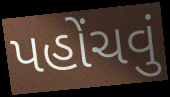
પહોંચવું